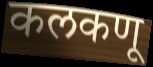
कलकणू